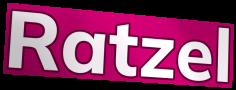
Ratzel